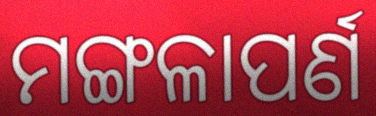
ମଙ୍ଗଳାପର୍ଣ